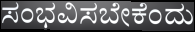
ಸಂಭವಿಸಬೇಕೆಂದು